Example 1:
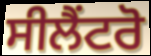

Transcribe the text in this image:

ਸੀਲੈਂਟਰੋ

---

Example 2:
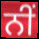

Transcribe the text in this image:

ਨੀਂ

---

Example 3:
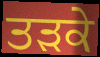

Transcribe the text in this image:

ਤੜਕੇ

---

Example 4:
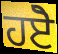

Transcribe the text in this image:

ਹਏੋ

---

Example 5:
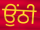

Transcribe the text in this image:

ਉਂਠੀ